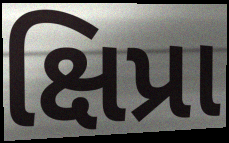
ક્ષિપ્રા